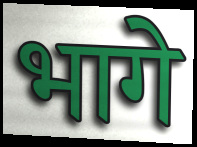
भागे